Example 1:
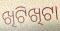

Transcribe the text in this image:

ଖିଟିଖିଟା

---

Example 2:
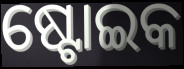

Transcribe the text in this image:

ଷ୍ଟୋଇକ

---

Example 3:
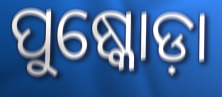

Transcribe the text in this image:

ପୁଷ୍କୋଡ଼ା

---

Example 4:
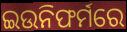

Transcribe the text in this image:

ଇଉନିଫର୍ମରେ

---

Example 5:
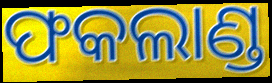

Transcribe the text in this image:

ଫକଲାଣ୍ଡ